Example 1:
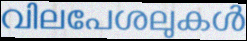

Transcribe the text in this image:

വിലപേശലുകൾ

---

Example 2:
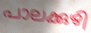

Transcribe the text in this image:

പാലക്കുഴി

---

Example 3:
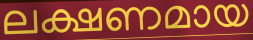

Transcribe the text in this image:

ലക്ഷണമായ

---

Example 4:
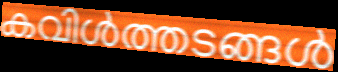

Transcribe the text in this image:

കവിൾത്തടങ്ങൾ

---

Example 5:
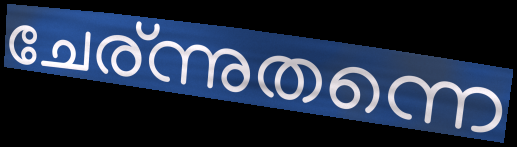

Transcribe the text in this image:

ചേര്ന്നുതന്നെ